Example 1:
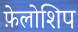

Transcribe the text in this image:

फ़ेलोशिप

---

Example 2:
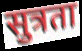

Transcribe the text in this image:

सुत्रता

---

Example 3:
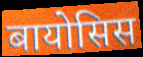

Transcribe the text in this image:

बायोसिस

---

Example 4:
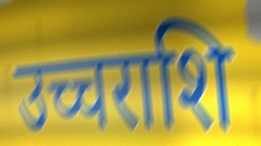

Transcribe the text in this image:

उच्चराशि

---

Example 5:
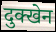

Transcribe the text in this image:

दुक्खेन